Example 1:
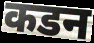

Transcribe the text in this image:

कडन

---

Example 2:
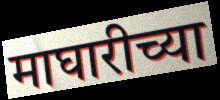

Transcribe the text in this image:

माघारीच्या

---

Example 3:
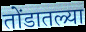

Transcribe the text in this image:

तोंडातल्या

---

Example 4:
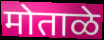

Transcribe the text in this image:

मोताळे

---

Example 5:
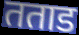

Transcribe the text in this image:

तताड